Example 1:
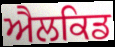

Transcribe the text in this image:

ਐਲਕਿਡ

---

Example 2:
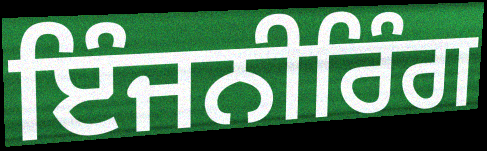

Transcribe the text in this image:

ਇੰਜਨੀਰਿੰਗ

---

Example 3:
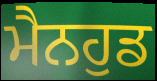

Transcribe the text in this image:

ਮੈਨਹੁਡ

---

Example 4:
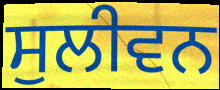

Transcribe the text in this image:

ਸੁਲੀਵਨ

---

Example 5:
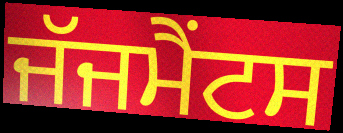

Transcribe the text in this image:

ਜੱਜਮੈਂਟਸ